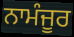
ਨਾਮੰਜੂਰ